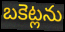
బకెట్లను